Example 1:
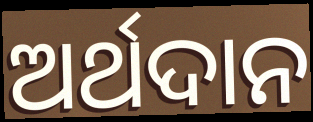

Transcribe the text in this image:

ଅର୍ଥଦାନ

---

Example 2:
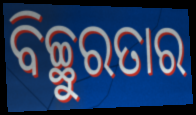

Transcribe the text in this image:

ବିଚ୍ଛୁରତାର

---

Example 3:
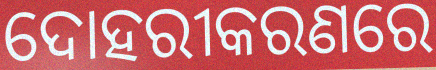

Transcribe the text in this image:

ଦୋହରୀକରଣରେ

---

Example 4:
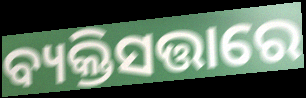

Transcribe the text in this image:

ବ୍ୟକ୍ତିସତ୍ତାରେ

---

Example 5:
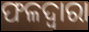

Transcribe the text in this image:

ଫଳଦ୍ୱାରା